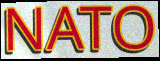
NATO